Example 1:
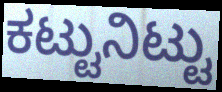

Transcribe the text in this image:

ಕಟ್ಟುನಿಟ್ಟು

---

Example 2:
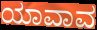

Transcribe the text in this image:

ಯಾವಾವ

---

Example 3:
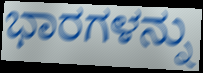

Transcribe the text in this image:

ಭಾರಗಳನ್ನು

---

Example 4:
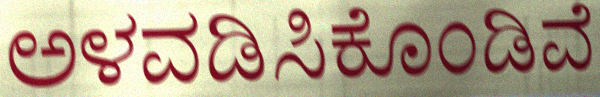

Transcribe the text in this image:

ಅಳವಡಿಸಿಕೊಂಡಿವೆ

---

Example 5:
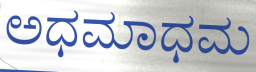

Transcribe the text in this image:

ಅಧಮಾಧಮ